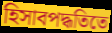
হিসাবপদ্ধতিতে